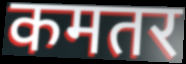
कमतर